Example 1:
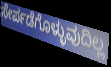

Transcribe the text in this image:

ಸೇರ್ಪಡೆಗೊಳ್ಳುವುದಿಲ್ಲ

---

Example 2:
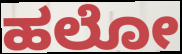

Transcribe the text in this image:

ಹಲೋ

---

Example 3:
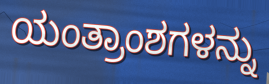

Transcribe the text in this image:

ಯಂತ್ರಾಂಶಗಳನ್ನು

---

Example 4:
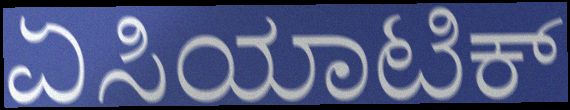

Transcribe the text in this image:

ಏಸಿಯಾಟಿಕ್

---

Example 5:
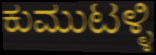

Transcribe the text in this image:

ಕುಮುಟಳ್ಳಿ